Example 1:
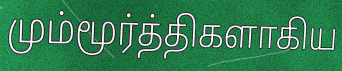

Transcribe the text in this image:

மும்மூர்த்திகளாகிய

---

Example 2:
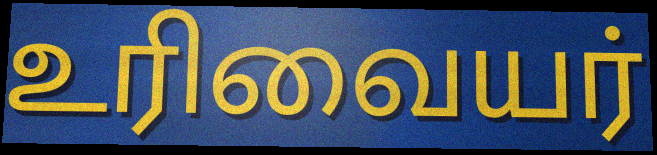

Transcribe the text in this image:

உரிவையர்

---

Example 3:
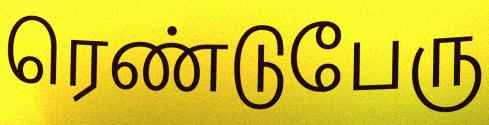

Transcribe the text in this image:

ரெண்டுபேரு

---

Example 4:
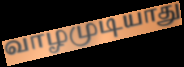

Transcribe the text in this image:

வாழமுடியாது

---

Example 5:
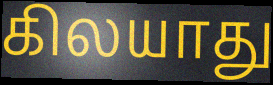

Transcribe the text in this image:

கிலயாது